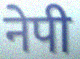
नेपी